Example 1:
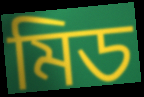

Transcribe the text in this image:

মিড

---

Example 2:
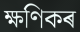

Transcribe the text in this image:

ক্ষণিকৰ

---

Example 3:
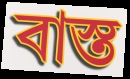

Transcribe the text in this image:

বাস্ত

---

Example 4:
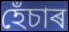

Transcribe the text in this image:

হেঁচাৰ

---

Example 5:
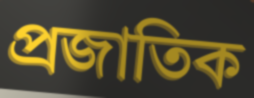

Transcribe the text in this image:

প্ৰজাতিক